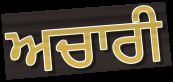
ਅਚਾਰੀ